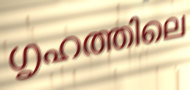
ഗൃഹത്തിലെ